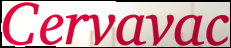
Cervavac